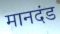
मानदंड